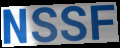
NSSF